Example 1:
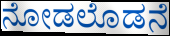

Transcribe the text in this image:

ನೋಡಲೊಡನೆ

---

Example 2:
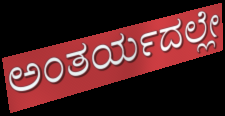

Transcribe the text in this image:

ಅಂತರ್ಯದಲ್ಲೇ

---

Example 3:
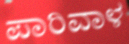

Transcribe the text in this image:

ಪಾರಿವಾಳ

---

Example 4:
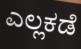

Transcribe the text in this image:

ಎಲ್ಲಕಡೆ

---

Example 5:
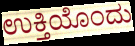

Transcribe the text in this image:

ಉಕ್ತಿಯೊಂದು